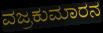
ವಜ್ರಕುಮಾರನ